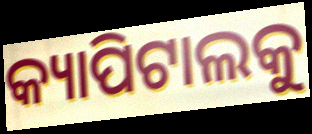
କ୍ୟାପିଟାଲକୁ